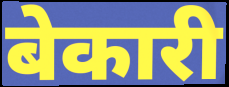
बेकारी